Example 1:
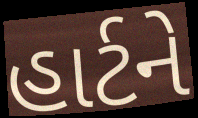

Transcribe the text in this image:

હાર્ટને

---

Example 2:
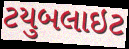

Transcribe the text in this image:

ટયુબલાઇટ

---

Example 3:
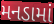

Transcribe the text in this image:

મનડામાં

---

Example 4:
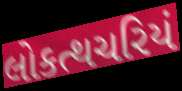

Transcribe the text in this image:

લોકત્થચરિયં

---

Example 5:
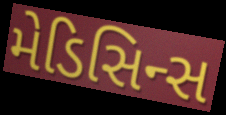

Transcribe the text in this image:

મેડિસિન્સ